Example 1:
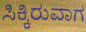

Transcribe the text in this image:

ಸಿಕ್ಕಿರುವಾಗ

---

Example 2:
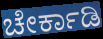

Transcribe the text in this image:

ಚೇರ್ಕಾಡಿ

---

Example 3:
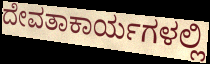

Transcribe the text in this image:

ದೇವತಾಕಾರ್ಯಗಳಲ್ಲಿ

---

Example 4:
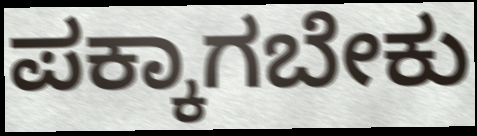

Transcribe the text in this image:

ಪಕ್ಕಾಗಬೇಕು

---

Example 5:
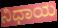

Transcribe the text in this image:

ನಿಧಾಯ